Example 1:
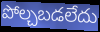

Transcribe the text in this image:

పోల్చబడలేదు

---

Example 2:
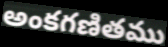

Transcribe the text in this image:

అంకగణితము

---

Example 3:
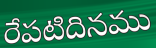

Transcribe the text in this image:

రేపటిదినము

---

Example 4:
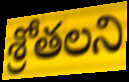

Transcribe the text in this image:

శ్రోతలని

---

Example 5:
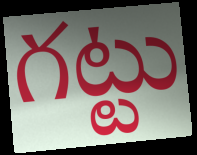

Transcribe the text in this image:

గట్టు